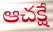
ఆచక్షే